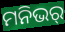
ମନିଭର୍